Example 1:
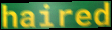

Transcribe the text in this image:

haired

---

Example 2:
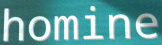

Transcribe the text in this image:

homine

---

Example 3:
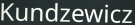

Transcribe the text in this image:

Kundzewicz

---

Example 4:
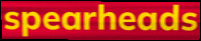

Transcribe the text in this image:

spearheads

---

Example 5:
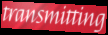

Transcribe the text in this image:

transmitting